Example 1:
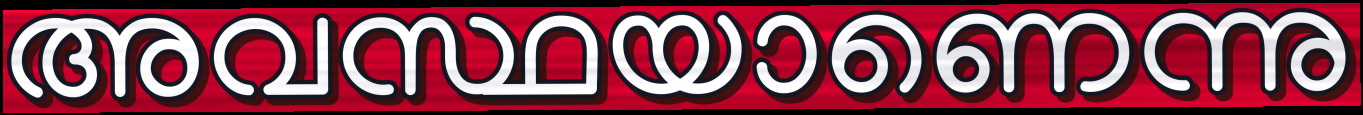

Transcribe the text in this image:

അവസ്ഥയാണെന്നു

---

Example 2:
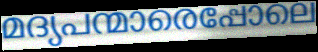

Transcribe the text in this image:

മദ്യപന്മാരെപ്പോലെ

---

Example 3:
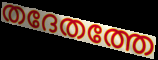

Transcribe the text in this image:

തദേതത്തേ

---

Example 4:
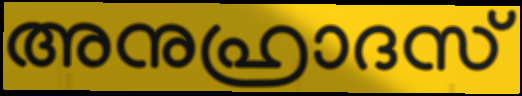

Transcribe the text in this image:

അനുഹ്രാദസ്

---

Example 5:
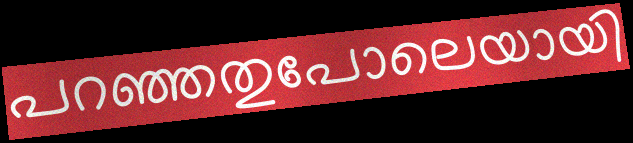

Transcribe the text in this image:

പറഞ്ഞതുപോലെയായി